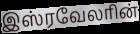
இஸ்ரவேலரின்